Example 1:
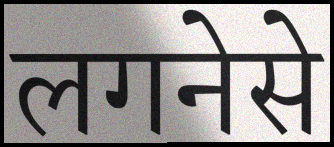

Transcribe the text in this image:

लगनेसे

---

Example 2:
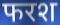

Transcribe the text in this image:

फरश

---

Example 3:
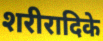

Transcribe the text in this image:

शरीरादिके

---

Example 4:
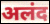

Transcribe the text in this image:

अलंद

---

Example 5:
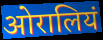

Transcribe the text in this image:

ओरालियं